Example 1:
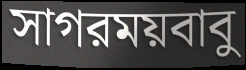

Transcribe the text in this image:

সাগরময়বাবু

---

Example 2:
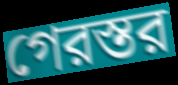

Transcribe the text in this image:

গেরস্তর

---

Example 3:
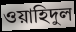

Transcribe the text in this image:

ওয়াহিদুল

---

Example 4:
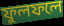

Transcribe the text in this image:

ফুলফলে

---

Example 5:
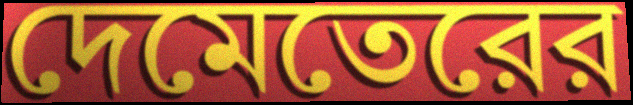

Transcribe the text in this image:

দেমেতেরের